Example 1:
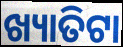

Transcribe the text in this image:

ଖ୍ୟାତିଟା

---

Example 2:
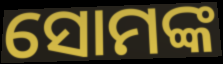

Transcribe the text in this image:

ସୋମଙ୍କ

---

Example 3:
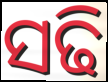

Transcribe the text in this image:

ସଢି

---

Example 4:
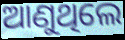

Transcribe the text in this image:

ଆଣୁଥିଲେ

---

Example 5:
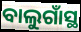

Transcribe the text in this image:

ବାଲୁଗାଁସ୍ଥ